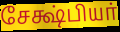
சேக்ஷ்பியர்